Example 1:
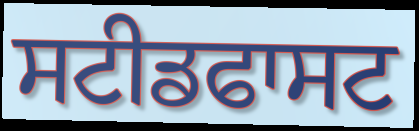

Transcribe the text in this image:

ਸਟੀਡਫਾਸਟ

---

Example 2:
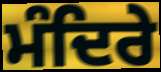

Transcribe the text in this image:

ਮੰਦਿਰੇ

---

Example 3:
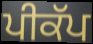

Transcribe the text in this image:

ਪੀਕੱਪ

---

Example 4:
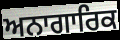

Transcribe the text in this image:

ਅਨਾਗਾਰਿਕ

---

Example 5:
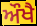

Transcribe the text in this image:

ਔਖੈ